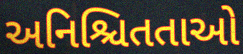
અનિશ્ચિતતાઓ